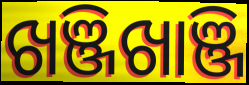
ଖଞ୍ଜିଖାଞ୍ଜି